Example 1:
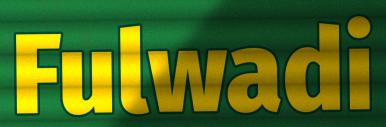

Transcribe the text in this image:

Fulwadi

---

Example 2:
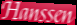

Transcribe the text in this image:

Hanssen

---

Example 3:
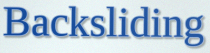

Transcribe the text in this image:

Backsliding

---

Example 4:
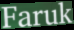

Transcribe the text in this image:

Faruk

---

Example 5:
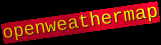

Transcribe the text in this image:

openweathermap